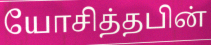
யோசித்தபின்